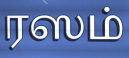
ரஸம்